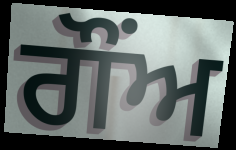
ਗੌਂਅ